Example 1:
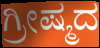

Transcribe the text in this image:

ಗ್ರೀಷ್ಮದ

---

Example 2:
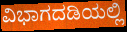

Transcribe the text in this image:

ವಿಭಾಗದಡಿಯಲ್ಲಿ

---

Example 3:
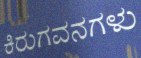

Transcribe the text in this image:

ಕಿರುಗವನಗಳು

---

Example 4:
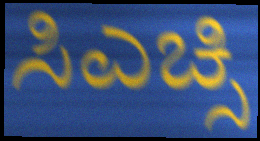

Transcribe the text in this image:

ಸಿಎಚ್ಸಿ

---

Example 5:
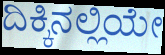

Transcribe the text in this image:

ದಿಕ್ಕಿನಲ್ಲಿಯೇ